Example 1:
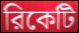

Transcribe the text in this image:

রিকেটি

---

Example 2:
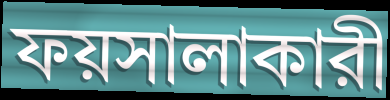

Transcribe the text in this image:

ফয়সালাকারী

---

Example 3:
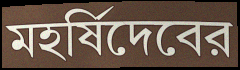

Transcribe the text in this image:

মহর্ষিদেবের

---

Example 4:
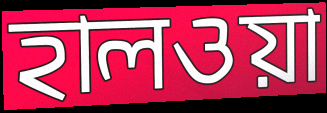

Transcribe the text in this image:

হালওয়া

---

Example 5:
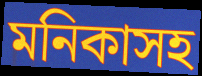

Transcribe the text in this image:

মনিকাসহ